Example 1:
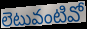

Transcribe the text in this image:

లెటువంటివో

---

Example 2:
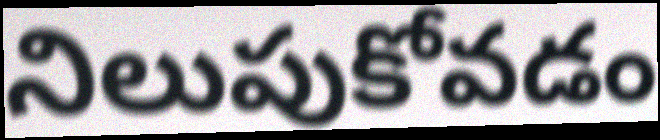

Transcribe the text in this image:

నిలుపుకోవడం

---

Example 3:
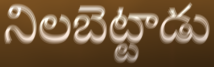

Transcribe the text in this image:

నిలబెట్టాడు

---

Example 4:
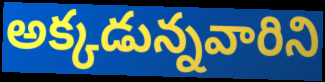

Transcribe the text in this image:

అక్కడున్నవారిని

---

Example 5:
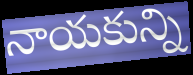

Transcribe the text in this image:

నాయకున్ని